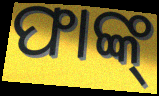
ଫାଙ୍କ୍